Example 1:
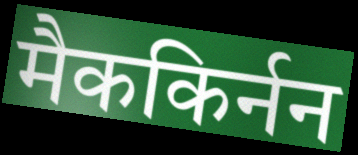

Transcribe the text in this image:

मैककिर्नन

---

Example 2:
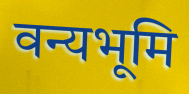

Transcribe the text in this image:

वन्यभूमि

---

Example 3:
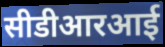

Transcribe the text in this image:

सीडीआरआई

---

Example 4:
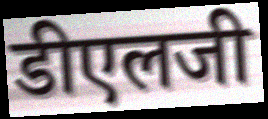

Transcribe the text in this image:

डीएलजी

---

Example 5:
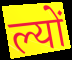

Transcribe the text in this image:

ल्यों